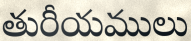
తురీయములు